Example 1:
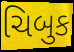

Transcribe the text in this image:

ચિબુક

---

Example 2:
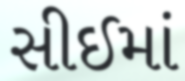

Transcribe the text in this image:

સીઈમાં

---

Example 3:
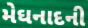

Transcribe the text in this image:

મેઘનાદની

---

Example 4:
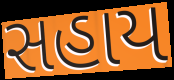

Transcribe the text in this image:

સહાય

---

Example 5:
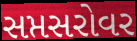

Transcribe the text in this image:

સપ્તસરોવર